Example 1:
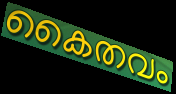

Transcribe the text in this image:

കൈതവം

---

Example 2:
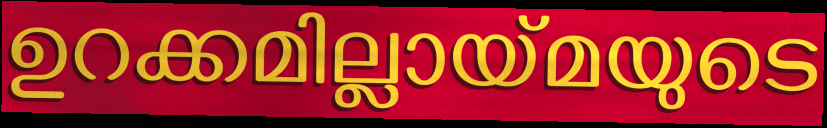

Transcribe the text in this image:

ഉറക്കമില്ലായ്മയുടെ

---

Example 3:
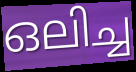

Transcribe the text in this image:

ഒലിച്ച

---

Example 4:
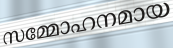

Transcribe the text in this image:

സമ്മോഹനമായ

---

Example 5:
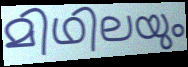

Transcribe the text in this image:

മിഥിലയും